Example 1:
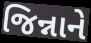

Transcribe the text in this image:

જિન્નાને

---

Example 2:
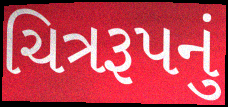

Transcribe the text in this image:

ચિત્રરૂપનું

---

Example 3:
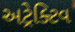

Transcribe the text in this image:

અટ્રેક્ટિવ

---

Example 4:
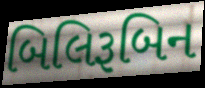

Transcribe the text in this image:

બિલિરૂબિન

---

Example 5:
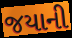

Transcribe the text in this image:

જયાની